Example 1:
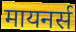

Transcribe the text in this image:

मायनर्स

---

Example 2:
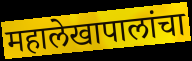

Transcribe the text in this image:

महालेखापालांचा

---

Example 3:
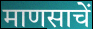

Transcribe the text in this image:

माणसाचें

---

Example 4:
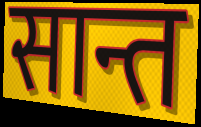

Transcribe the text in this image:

सान्त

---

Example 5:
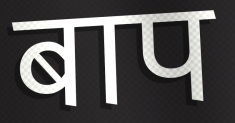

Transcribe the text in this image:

बाप